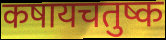
कषायचतुष्क